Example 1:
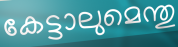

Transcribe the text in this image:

കേട്ടാലുമെന്തു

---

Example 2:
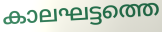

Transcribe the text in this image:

കാലഘട്ടത്തെ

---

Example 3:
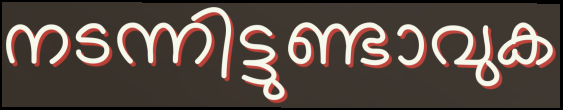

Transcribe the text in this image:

നടന്നിട്ടുണ്ടാവുക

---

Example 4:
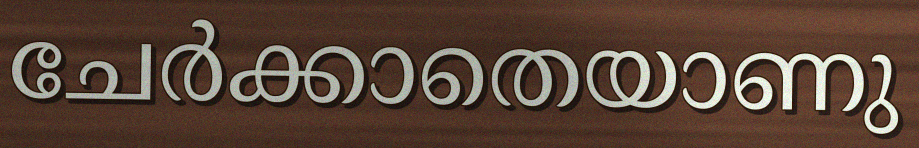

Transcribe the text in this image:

ചേർക്കാതെയാണു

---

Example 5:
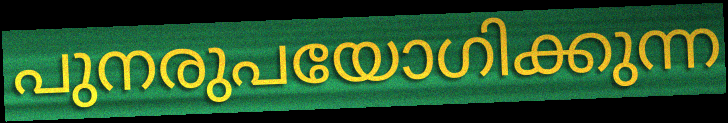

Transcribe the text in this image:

പുനരുപയോഗിക്കുന്ന